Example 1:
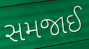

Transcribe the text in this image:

સમજાઈ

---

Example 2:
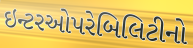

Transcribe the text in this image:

ઇન્ટરઓપરેબિલિટીનો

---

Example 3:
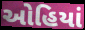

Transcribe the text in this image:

ઓહિયાં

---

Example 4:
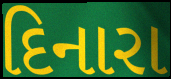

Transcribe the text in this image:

દિનારા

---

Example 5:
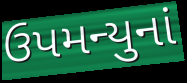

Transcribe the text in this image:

ઉપમન્યુનાં